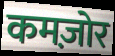
कमज़ोर